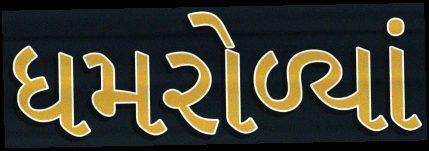
ધમરોળ્યાં